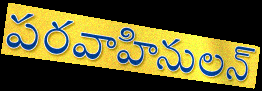
పరవాహినులన్